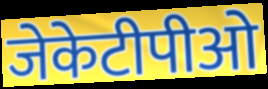
जेकेटीपीओ